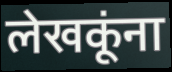
लेखकूंना